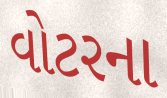
વોટરના